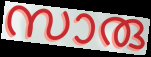
സാരു